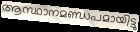
ആസ്ഥാനമണ്ഡപമായിട്ടു